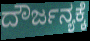
ದೌರ್ಜನ್ಯಕ್ಕೆ